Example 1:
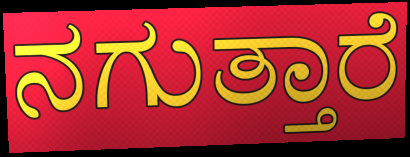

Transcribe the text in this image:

ನಗುತ್ತಾರೆ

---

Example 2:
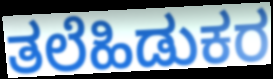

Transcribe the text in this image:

ತಲೆಹಿಡುಕರ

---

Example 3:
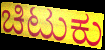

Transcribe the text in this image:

ಚಿಟುಕು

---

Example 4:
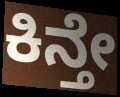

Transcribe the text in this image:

ಕಿನ್ತೇ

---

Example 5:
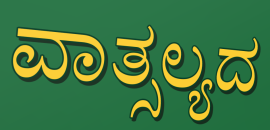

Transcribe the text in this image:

ವಾತ್ಸಲ್ಯದ